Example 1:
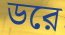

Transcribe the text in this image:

ডরে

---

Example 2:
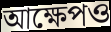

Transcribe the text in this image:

আক্ষেপও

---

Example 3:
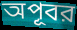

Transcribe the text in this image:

অপূবর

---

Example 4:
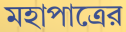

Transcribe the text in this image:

মহাপাত্রের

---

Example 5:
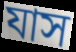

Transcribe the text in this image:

যাস